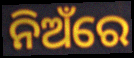
ନିଅଁରେ